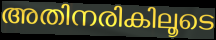
അതിനരികിലൂടെ